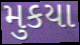
મુકયા